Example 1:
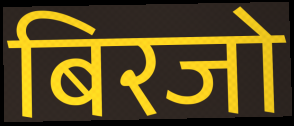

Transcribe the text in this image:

बिरजो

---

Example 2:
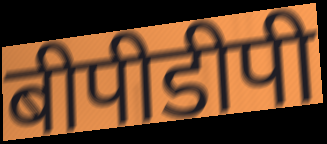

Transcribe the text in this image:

बीपीडीपी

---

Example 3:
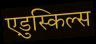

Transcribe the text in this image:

एडुस्किल्स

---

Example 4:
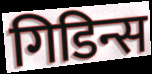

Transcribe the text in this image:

गिडिन्स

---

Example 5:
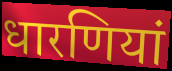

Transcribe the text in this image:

धारणियां